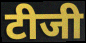
टीजी